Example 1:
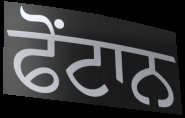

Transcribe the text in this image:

ਫੋਂਟਾਨ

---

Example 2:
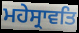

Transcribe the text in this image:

ਮਹੇਸ੍ਰਾਵਤਿ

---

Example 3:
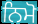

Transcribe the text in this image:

ਨਿਮੋ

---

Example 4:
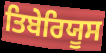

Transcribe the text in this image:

ਤਿਬੇਰਿਯੂਸ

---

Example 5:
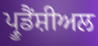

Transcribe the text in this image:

ਪ੍ਰੂਡੈਂਸ਼ੀਅਲ